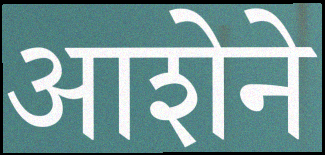
आशेने